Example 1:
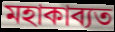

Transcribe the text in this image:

মহাকাব্যত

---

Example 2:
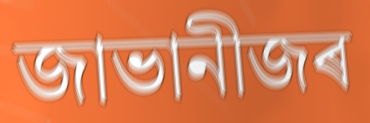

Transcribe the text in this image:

জাভানীজৰ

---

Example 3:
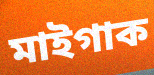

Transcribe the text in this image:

মাইগাক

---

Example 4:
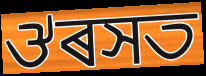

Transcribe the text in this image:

ঔৰসত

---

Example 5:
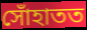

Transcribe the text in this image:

সোঁহাতত